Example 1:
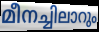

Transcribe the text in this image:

മീനച്ചിലാറും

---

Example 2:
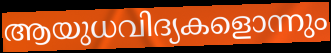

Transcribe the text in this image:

ആയുധവിദ്യകളൊന്നും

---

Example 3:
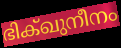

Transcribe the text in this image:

ഭിക്ഖുനീനം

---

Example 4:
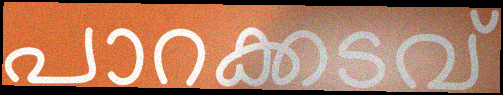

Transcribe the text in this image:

പാറക്കടവ്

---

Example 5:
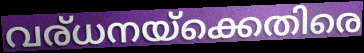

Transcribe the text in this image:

വര്ധനയ്ക്കെതിരെ